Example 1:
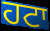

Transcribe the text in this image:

ਹਟਾ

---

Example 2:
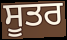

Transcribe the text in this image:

ਸੂਤਰ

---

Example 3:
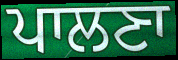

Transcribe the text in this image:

ਪਾਲਣਾ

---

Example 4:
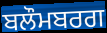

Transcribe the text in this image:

ਬਲੌਮਬਰਗ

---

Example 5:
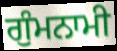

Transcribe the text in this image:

ਗੁੰਮਨਾਮੀ